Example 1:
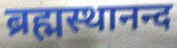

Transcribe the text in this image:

ब्रह्मस्थानन्द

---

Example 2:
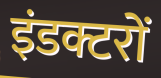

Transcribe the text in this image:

इंडक्टरों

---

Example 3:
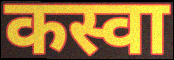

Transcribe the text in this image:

कस्वा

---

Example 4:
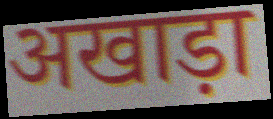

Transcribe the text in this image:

अखाड़ा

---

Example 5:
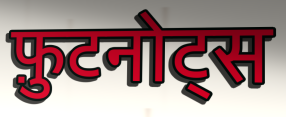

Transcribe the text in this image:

फ़ुटनोट्स